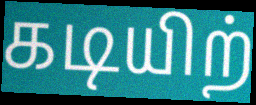
கடியிற்